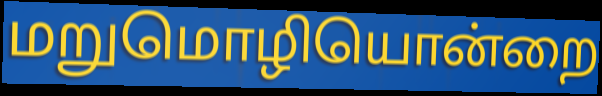
மறுமொழியொன்றை